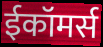
ईकॉमर्स